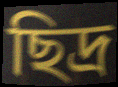
ছিদ্র